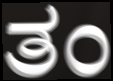
ತಂ